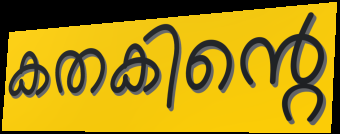
കതകിന്റെ